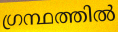
ഗ്രന്ഥത്തിൽ